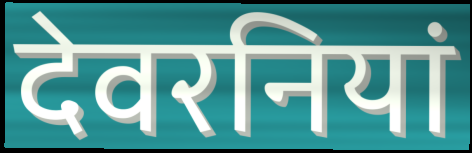
देवरनियां